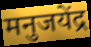
मनुजयेंद्र